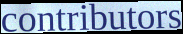
contributors